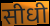
सीधी